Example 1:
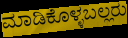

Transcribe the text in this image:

ಮಾಡಿಕೊಳ್ಳಬಲ್ಲರು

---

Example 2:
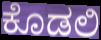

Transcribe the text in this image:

ಕೊಡಲಿ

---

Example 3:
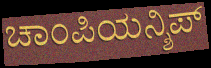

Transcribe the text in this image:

ಚಾಂಪಿಯನ್ಶಿಪ್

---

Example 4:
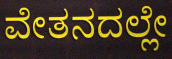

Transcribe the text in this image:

ವೇತನದಲ್ಲೇ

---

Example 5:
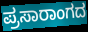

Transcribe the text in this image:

ಪ್ರಸಾರಾಂಗದ